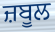
ਜ਼ਬੂਲ